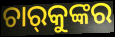
ଚାର୍‌କୁଙ୍କର